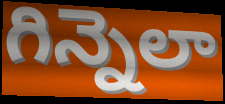
గిన్నెలా